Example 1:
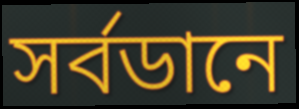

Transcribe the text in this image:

সর্বডানে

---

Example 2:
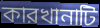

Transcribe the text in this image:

কারখানাটি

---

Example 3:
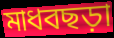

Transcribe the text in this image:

মাধবছড়া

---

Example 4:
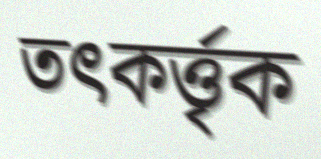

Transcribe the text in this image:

তৎকর্ত্তৃক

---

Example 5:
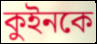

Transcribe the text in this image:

কুইনকে